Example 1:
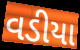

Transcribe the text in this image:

વડીયા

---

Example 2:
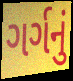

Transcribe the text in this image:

ગર્ગનું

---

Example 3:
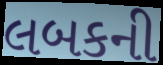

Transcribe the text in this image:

લબકની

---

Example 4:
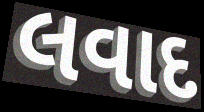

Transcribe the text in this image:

લવાદ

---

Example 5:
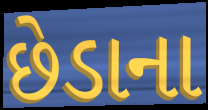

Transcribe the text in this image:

છેડાના